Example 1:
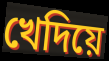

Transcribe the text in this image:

খেদিয়ে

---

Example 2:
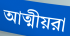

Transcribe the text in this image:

আত্মীয়রা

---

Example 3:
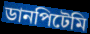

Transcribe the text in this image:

ডানপিটেমি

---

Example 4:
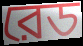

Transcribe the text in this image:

রেড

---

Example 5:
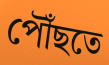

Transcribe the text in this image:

পৌঁছতে